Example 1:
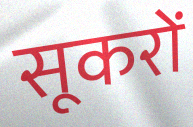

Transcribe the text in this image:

सूकरों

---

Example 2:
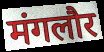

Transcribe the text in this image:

मंगलौर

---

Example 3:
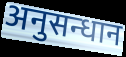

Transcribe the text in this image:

अनुसन्धान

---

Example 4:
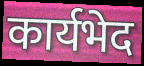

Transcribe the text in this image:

कार्यभेद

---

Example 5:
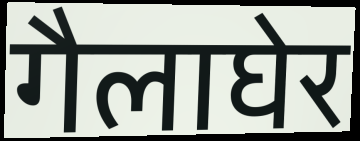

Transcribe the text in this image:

गैलाघेर